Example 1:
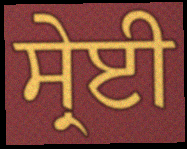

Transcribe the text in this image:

ਸ੍ਰੇਈ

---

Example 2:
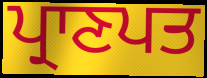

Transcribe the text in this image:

ਪ੍ਰਾਣਪਤ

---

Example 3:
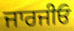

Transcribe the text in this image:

ਜਾਰਜੀਓ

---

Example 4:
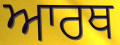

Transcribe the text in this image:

ਆਰਥ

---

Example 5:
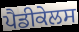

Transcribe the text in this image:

ਪੈਡੀਕੇਲਸ